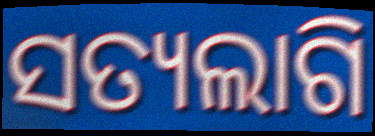
ସତ୍ୟଲାଗି